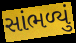
સાંભળ્યું